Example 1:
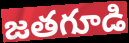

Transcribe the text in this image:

జతగూడి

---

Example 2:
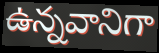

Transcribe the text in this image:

ఉన్నవానిగా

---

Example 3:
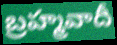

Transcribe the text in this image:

బ్రహ్మవాదీ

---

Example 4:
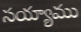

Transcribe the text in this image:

సయ్యాము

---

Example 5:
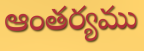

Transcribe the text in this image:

ఆంతర్యము